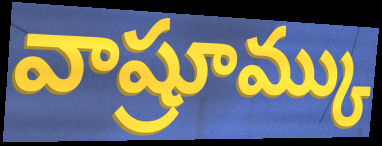
వాష్రూమ్కు